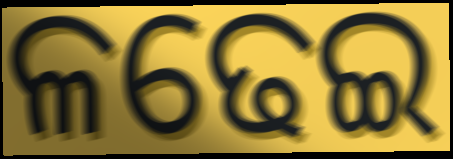
ଳଢେଇ